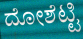
ದೋಶೆಟ್ಟಿ